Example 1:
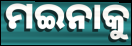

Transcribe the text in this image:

ମଇନାକୁ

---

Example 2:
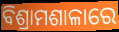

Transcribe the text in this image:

ବିଶ୍ରାମଶାଳାରେ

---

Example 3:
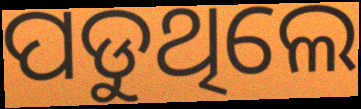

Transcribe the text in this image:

ପଡୁଥିଲେ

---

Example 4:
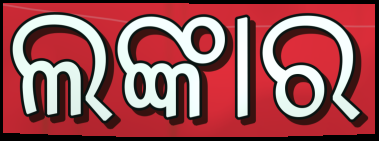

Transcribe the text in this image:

ଲଙ୍କାର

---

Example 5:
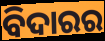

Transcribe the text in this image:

ବିଦାରର